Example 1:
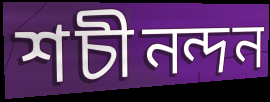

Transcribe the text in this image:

শচীনন্দন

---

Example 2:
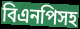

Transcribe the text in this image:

বিএনপিসহ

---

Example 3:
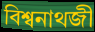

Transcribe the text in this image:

বিশ্বনাথজী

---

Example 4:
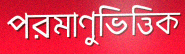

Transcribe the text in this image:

পরমাণুভিত্তিক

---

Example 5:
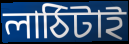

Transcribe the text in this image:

লাঠিটাই